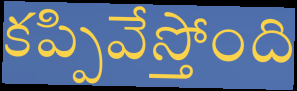
కప్పివేస్తోంది